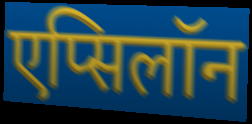
एप्सिलॉन